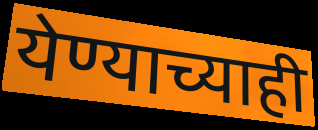
येण्याच्याही